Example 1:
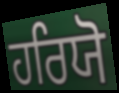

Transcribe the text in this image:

ਹਰਿਯੋ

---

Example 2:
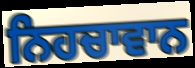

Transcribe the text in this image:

ਨਿਹਚਾਵਾਨ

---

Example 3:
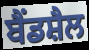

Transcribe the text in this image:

ਬੈਂਡਸ਼ੈਲ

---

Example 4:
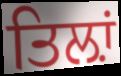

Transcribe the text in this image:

ਤਿਲ਼ਾਂ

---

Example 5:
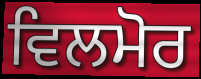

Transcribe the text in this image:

ਵਿਲਮੋਰ